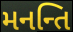
મનન્તિ